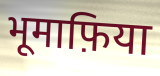
भूमाफ़िया